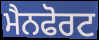
ਮੈਨਫੋਰਟ